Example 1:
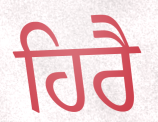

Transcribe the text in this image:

ਹਿਰੈ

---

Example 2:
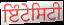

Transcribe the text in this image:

ਇੰਟੇਸਿਟੀ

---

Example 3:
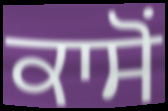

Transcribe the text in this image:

ਕਾਸੋਂ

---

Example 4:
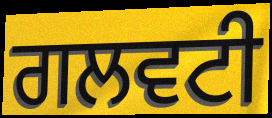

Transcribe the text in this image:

ਗਲਵਟੀ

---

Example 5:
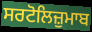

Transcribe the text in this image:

ਸਰਟੋਲਿਜ਼ੁਮਾਬ